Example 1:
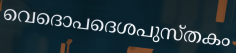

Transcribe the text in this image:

വെദൊപദെശപുസ്തകം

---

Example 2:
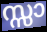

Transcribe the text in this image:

സ്സാ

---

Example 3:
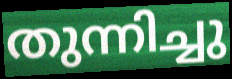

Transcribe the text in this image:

തുന്നിച്ചു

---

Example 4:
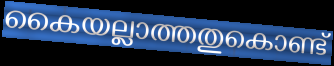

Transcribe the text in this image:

കൈയല്ലാത്തതുകൊണ്ട്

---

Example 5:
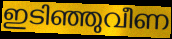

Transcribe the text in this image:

ഇടിഞ്ഞുവീണ